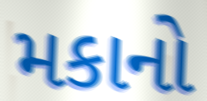
મકાનો